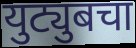
युट्युबचा